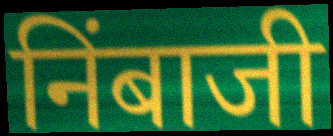
निंबाजी